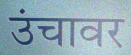
उंचावर